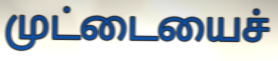
முட்டையைச்